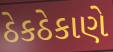
ઠેકઠેકાણે